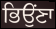
ਭਿਉਂਣਾ